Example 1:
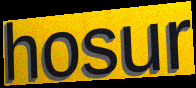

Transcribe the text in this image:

hosur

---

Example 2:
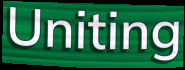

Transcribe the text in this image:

Uniting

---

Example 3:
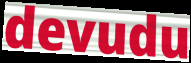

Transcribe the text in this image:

devudu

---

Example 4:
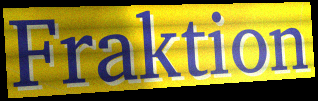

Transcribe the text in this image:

Fraktion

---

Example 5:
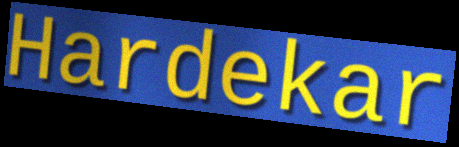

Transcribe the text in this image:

Hardekar